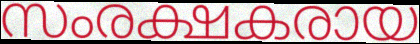
സംരക്ഷകരായ